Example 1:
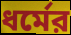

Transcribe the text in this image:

ধর্মের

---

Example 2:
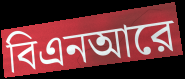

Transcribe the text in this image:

বিএনআরে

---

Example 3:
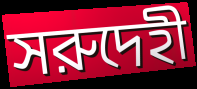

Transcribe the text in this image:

সরুদেহী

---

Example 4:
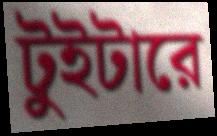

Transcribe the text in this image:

টুইটারে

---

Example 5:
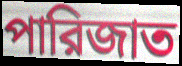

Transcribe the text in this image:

পারিজাত